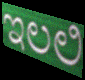
ಇಲಲಿ